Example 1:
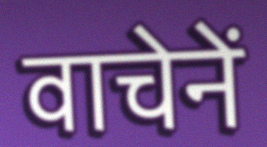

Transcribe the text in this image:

वाचेनें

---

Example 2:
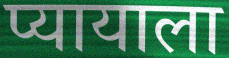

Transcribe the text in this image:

प्यायाला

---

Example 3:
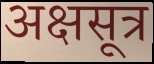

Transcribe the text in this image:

अक्षसूत्र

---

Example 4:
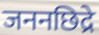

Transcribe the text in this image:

जननछिद्रे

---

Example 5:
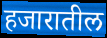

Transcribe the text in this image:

हजारातील